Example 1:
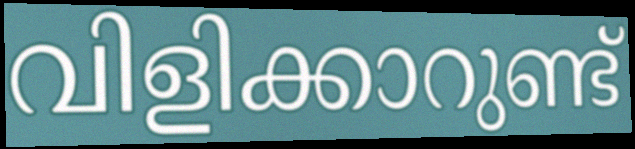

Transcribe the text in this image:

വിളിക്കാറുണ്ട്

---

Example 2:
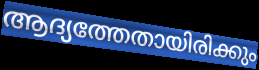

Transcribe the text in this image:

ആദ്യത്തേതായിരിക്കും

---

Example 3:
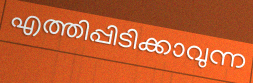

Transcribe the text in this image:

എത്തിപ്പിടിക്കാവുന്ന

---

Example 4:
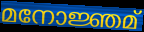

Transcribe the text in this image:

മനോജ്ഞമ്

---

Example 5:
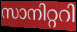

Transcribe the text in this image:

സാനിറ്ററി